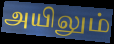
அயிலும்